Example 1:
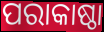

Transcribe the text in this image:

ପରାକାଷ୍ଠା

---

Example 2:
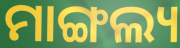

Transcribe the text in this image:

ମାଙ୍ଗଲ୍ୟ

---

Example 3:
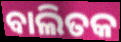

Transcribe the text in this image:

ବାଲିତକ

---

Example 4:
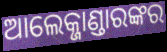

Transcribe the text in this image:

ଆଲେକ୍ଜାଣ୍ଡାରଙ୍କର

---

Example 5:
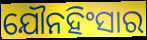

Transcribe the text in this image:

ଯୌନହିଂସାର